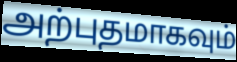
அற்புதமாகவும்